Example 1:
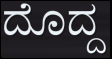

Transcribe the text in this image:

ದೊದ್ದ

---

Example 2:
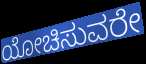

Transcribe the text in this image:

ಯೋಚಿಸುವರೇ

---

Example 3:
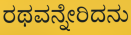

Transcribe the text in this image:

ರಥವನ್ನೇರಿದನು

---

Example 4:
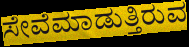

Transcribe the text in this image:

ಸೇವೆಮಾಡುತ್ತಿರುವ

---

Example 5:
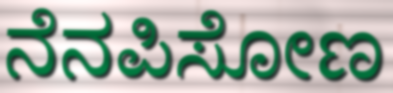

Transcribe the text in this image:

ನೆನಪಿಸೋಣ